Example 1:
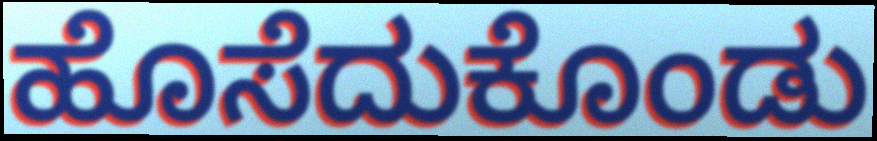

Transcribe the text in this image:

ಹೊಸೆದುಕೊಂಡು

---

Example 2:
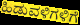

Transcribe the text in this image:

ಹಿಡುವಳಿಗಳಿಗೆ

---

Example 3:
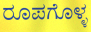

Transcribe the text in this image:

ರೂಪಗೊಳ್ಳ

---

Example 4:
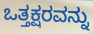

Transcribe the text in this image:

ಒತ್ತಕ್ಷರವನ್ನು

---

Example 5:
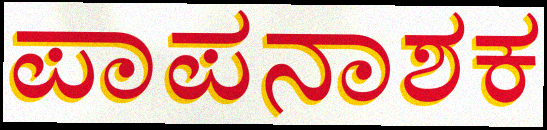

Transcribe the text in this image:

ಪಾಪನಾಶಕ